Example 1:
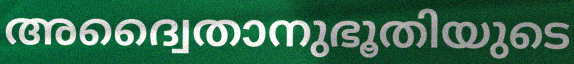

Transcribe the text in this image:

അദ്വൈതാനുഭൂതിയുടെ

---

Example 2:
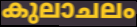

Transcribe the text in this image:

കുലാചലം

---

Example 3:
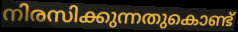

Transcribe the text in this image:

നിരസിക്കുന്നതുകൊണ്ട്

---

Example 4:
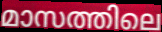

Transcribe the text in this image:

മാസത്തിലെ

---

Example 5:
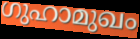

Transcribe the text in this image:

ഗുഹാമുഖം